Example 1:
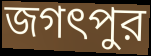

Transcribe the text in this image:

জগৎপুর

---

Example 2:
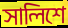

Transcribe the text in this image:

সালিশে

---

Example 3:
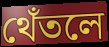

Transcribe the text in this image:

থেঁতলে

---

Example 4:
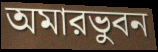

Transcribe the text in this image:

অমারভুবন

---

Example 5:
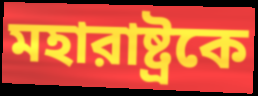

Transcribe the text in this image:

মহারাষ্ট্রকে